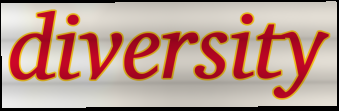
diversity